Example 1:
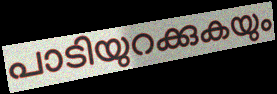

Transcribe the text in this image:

പാടിയുറക്കുകയും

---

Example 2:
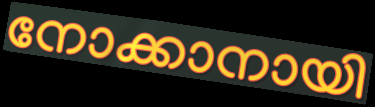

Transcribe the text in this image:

നോക്കാനായി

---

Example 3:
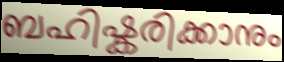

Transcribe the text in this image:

ബഹിഷ്കരിക്കാനും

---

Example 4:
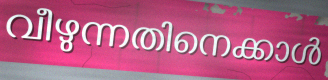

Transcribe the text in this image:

വീഴുന്നതിനെക്കാൾ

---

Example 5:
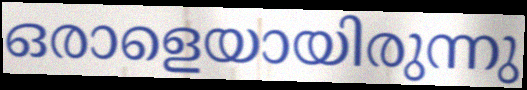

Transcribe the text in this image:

ഒരാളെയായിരുന്നു